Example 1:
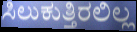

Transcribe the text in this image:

ಸಿಲುಕುತ್ತಿರಲಿಲ್ಲ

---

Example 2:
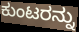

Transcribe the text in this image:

ಕುಂಟರನ್ನು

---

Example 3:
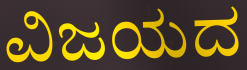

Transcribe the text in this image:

ವಿಜಯದ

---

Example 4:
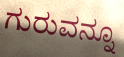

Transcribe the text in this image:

ಗುರುವನ್ನೂ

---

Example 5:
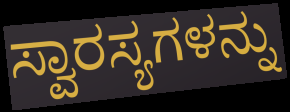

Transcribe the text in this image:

ಸ್ವಾರಸ್ಯಗಳನ್ನು